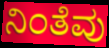
ನಿಂತೆವು